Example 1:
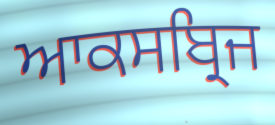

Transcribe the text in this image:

ਆਕਸਬ੍ਰਿਜ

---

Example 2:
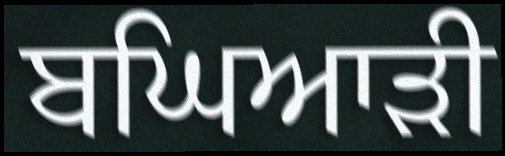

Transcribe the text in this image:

ਬਘਿਆੜੀ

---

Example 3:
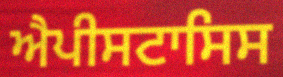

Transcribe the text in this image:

ਐਪੀਸਟਾਸਿਸ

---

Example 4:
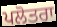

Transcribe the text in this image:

ਪਲੋਤਰਾ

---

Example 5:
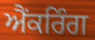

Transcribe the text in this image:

ਐਂਕਰਿੰਗ